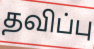
தவிப்பு